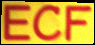
ECF